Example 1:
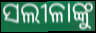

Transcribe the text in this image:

ସଲୀଳାଙ୍କୁ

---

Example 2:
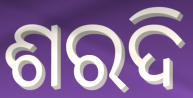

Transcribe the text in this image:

ଶରଦି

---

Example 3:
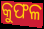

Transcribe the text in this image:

କୁଫଳ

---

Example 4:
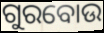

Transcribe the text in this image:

ଗୁରବୋଉ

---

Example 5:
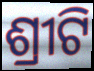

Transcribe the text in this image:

ଶ୍ରୀଟି